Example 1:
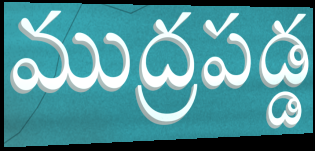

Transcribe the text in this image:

ముద్రపడ్డ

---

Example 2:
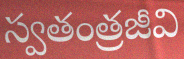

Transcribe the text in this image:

స్వతంత్రజీవి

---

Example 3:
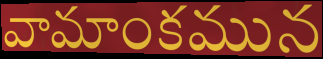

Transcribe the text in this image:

వామాంకమున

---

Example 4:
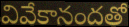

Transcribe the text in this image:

వివేకానందతో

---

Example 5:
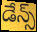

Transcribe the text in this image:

డేన్స్